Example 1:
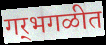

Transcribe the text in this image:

गर्भगळीत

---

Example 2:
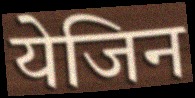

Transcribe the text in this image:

येजिन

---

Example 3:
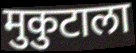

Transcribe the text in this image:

मुकुटाला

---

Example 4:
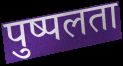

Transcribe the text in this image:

पुष्पलता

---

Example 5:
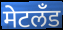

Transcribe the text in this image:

मेटलँड